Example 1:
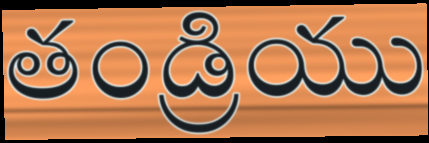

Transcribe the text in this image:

తండ్రియు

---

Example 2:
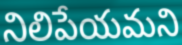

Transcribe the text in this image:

నిలిపేయమని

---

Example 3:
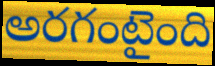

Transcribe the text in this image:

అరగంటైంది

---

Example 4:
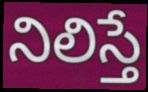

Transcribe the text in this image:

నిలిస్తే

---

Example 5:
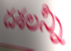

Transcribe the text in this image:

దశలన్నీ